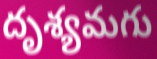
దృశ్యమగు